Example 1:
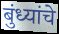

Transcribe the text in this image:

बुंध्यांचे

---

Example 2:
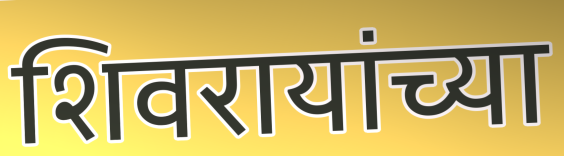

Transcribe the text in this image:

शिवरायांच्या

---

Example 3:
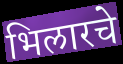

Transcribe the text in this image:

भिलारचे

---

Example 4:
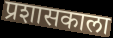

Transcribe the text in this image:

प्रशासकाला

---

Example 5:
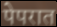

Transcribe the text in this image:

पेपरात